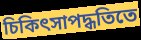
চিকিৎসাপদ্ধতিতে